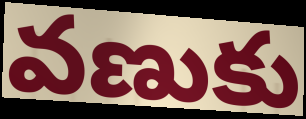
వణుకు